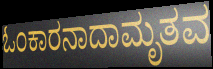
ಓಂಕಾರನಾದಾಮೃತವ